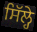
ਸਿੱਲ੍ਹੇ